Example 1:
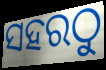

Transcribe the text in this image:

ସହରଠୁ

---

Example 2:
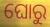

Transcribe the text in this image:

ଘୋରୁ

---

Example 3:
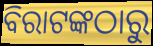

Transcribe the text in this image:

ବିରାଟଙ୍କଠାରୁ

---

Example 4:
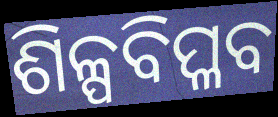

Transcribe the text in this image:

ଶିଳ୍ପବିପ୍ଳବ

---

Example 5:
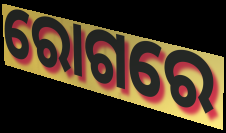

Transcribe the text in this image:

ରୋଗରେ